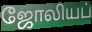
ஜோலியப்